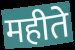
महीते